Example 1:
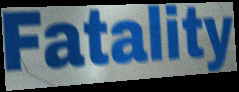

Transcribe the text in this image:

Fatality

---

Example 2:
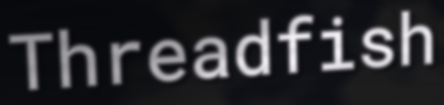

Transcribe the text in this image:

Threadfish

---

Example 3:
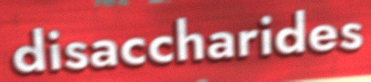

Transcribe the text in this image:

disaccharides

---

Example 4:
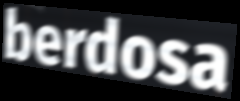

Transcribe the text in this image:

berdosa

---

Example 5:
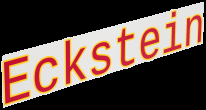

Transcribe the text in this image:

Eckstein